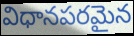
విధానపరమైన